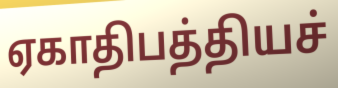
ஏகாதிபத்தியச்